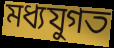
মধ্যযুগত